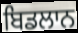
ਬਿਡਲਾਨ